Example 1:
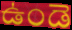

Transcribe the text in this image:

ఉండె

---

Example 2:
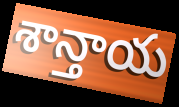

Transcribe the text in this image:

శాన్తాయ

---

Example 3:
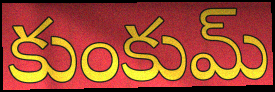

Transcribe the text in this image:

కుంకుమ్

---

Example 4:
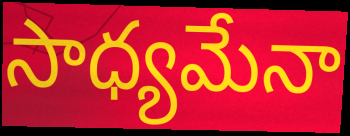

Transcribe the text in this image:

సాధ్యమేనా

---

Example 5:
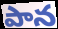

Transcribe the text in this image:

పాన